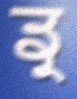
ਡ੍ਰ